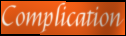
Complication